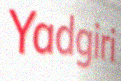
Yadgiri